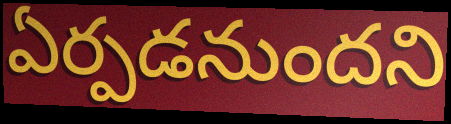
ఏర్పడనుందని